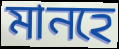
মানহে